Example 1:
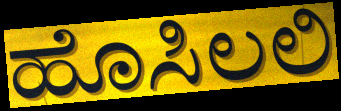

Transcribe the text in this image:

ಹೊಸಿಲಲಿ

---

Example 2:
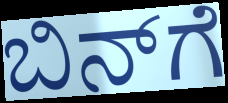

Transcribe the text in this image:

ಬಿನ್‌ಗೆ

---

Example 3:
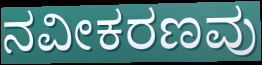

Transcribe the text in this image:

ನವೀಕರಣವು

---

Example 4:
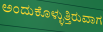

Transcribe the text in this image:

ಅಂದುಕೊಳ್ಳುತ್ತಿರುವಾಗ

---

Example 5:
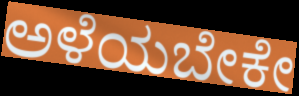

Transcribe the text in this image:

ಅಳೆಯಬೇಕೇ